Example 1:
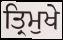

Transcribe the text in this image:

ਤ੍ਰਿਮੁਖੇ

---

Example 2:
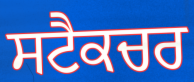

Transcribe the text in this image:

ਸਟੈਕਚਰ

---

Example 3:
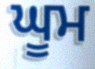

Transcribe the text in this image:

ਘੂਮ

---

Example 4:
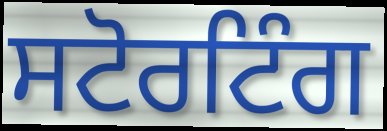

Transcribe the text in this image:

ਸਟੋਰਟਿੰਗ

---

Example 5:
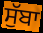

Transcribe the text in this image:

ਸੁੱਬਾ